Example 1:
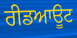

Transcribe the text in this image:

ਰੀਡਆਊਟ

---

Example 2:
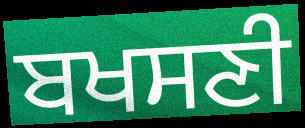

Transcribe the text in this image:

ਬਖਸਣੀ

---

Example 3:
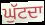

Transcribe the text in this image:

ਘੁੱਟਦਾ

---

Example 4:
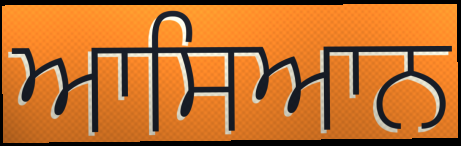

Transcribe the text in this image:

ਆਸਿਆਨ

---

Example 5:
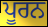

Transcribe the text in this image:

ਪੂਰਨ